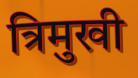
त्रिमुखी